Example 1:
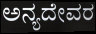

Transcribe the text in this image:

ಅನ್ಯದೇವರ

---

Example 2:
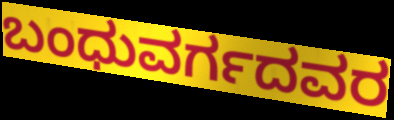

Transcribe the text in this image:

ಬಂಧುವರ್ಗದವರ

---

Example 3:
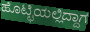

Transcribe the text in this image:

ಹೊಟ್ಟೆಯಲ್ಲಿದ್ದಾಗ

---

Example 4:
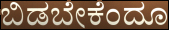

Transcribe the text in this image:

ಬಿಡಬೇಕೆಂದೂ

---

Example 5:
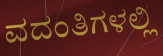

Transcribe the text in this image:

ವದಂತಿಗಳಲ್ಲಿ